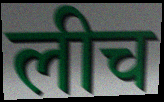
लीच